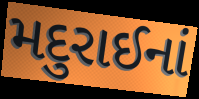
મદુરાઈનાં